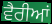
ਵੈਰੀਆਂ